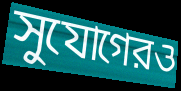
সুযোগেরও